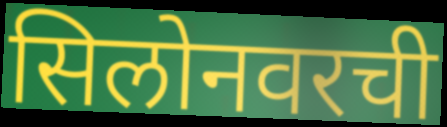
सिलोनवरची